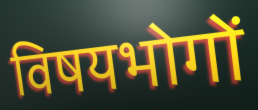
विषयभोगों